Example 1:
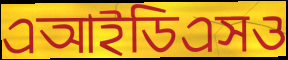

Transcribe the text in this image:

এআইডিএসও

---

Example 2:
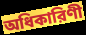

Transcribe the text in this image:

অধিকারিণী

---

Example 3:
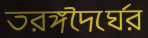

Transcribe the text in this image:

তরঙ্গদৈর্ঘের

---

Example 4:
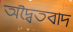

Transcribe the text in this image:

অদ্বৈতবাদ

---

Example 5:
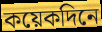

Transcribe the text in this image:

কয়েকদিনে